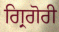
ਗ੍ਰਿਗੋਰੀ